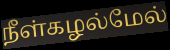
நீள்கழல்மேல்